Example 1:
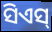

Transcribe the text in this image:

ସିଏସ୍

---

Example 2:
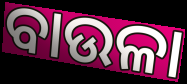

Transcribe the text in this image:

ବାଉଳା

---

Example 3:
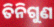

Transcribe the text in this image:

ତିନିଗୁଣ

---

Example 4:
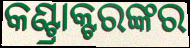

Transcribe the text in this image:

କଣ୍ଟ୍ରାକ୍ଟରଙ୍କର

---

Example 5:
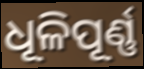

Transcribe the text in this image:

ଧୂଳିପୂର୍ଣ୍ଣ